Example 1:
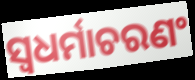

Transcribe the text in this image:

ସ୍ୱଧର୍ମାଚରଣଂ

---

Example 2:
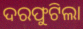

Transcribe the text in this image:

ଦରଫୁଟିଲା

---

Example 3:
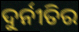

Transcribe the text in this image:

ଦୁର୍ନୀତିର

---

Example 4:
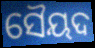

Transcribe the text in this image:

ସୈୟଦ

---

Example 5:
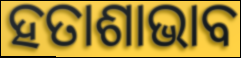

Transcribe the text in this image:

ହତାଶାଭାବ